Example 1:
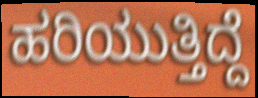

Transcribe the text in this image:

ಹರಿಯುತ್ತಿದ್ದೆ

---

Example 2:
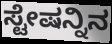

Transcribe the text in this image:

ಸ್ಟೇಷನ್ನಿನ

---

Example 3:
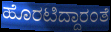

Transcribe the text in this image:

ಹೊರಟಿದ್ದಾರಂತೆ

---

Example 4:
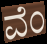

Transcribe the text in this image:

ವೆಂ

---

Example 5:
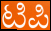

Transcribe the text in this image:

ಟಿಪಿ